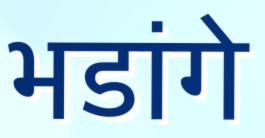
भडांगे